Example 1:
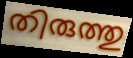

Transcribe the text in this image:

തിരുത്തു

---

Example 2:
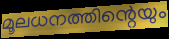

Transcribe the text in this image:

മൂലധനത്തിന്റെയും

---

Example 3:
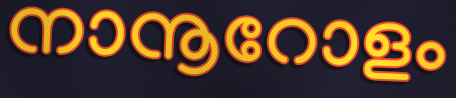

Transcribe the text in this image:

നാനൂറോളം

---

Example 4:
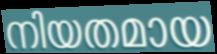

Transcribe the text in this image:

നിയതമായ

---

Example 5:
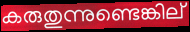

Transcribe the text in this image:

കരുതുന്നുണ്ടെങ്കില്